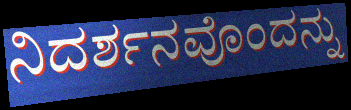
ನಿದರ್ಶನವೊಂದನ್ನು